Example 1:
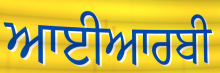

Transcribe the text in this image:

ਆਈਆਰਬੀ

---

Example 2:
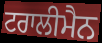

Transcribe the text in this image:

ਟਰਾਲੀਮੈਨ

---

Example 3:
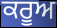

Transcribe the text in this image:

ਕਰੂਅ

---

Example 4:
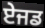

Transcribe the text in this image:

ਏਜਡ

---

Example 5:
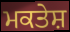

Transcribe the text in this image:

ਮਕਤੇਸ਼